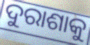
ଦୁରାଶାକୁ